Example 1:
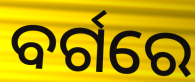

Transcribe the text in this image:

ବର୍ଗରେ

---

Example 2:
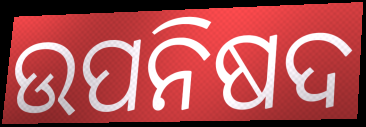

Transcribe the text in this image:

ଉପନିଷଦ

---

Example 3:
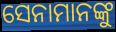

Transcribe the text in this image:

ସେନାମାନଙ୍କୁ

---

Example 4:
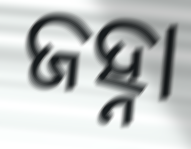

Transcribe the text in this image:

ଜହ୍ନା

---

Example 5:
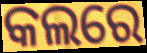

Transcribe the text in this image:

କଲରେ